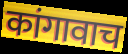
कांगावाच